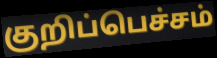
குறிப்பெச்சம்